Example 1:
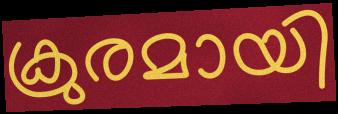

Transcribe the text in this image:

ക്രുരമായി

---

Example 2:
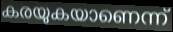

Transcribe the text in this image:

കരയുകയാണെന്ന്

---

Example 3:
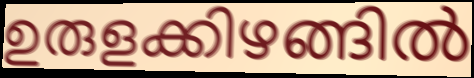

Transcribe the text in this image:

ഉരുളക്കിഴങ്ങിൽ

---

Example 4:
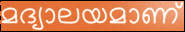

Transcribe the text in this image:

മദ്യാലയമാണ്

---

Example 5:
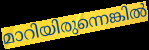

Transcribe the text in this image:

മാറിയിരുന്നെങ്കിൽ